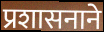
प्रशासनाने